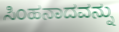
ಸಿಂಹನಾದವನ್ನು